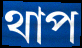
থাপ